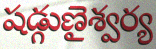
షడ్గుణైశ్వర్య